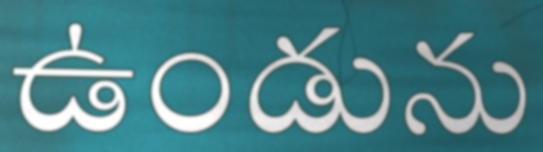
ఉండును